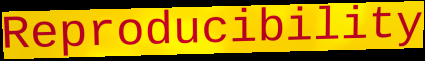
Reproducibility